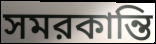
সমরকান্তি